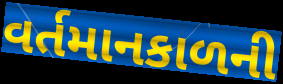
વર્તમાનકાળની